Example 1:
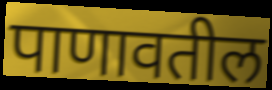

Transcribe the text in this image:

पाणावतील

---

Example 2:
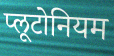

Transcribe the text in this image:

प्लूटोनियम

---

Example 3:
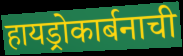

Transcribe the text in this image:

हायड्रोकार्बनाची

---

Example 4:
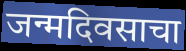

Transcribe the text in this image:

जन्मदिवसाचा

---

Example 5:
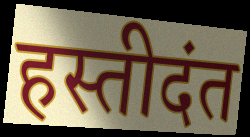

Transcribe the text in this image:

हस्तीदंत